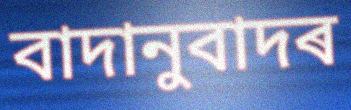
বাদানুবাদৰ